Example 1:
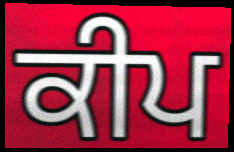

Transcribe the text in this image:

ਕੀਪ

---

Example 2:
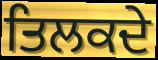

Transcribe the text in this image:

ਤਿਲਕਦੇ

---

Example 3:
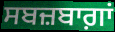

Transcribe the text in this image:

ਸਬਜ਼ਬਾਗ਼ਾਂ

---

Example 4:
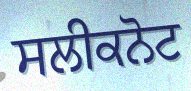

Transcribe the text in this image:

ਸਲੀਕਨੋਟ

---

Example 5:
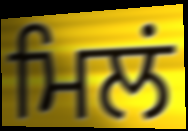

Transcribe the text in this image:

ਮਿਲਂ